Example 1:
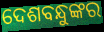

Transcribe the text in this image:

ଦେଶବନ୍ଧୁଙ୍କର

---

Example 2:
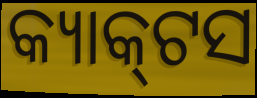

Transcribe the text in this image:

କ୍ୟାକ୍‌ଟସ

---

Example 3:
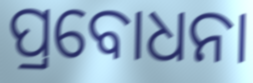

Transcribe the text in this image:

ପ୍ରବୋଧନା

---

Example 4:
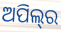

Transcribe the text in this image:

ଅପିଲ୍‍ର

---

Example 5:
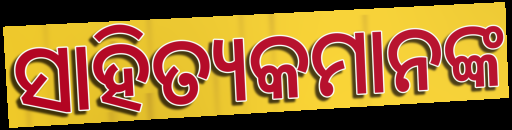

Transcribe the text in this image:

ସାହିତ୍ୟକମାନଙ୍କ